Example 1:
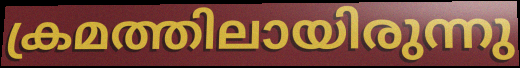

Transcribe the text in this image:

ക്രമത്തിലായിരുന്നു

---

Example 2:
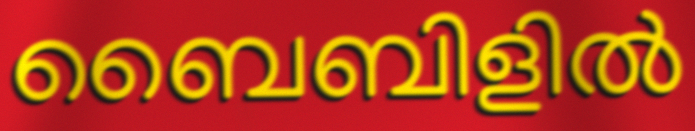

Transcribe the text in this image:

ബൈബിളിൽ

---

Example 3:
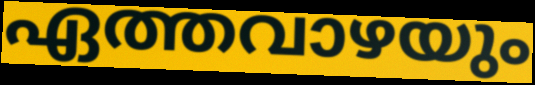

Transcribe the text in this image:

ഏത്തവാഴയും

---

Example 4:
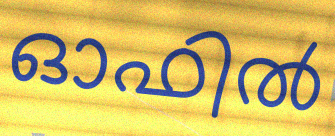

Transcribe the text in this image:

ഓഫിൽ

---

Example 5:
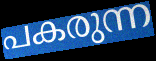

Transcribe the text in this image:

പകരുന്ന